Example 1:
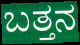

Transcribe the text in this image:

ಬತ್ತನ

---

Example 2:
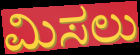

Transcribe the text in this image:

ಮಿಸಲು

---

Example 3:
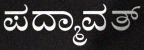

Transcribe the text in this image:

ಪದ್ಮಾವತ್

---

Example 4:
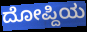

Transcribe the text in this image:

ದೋಪ್ದಿಯ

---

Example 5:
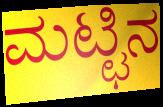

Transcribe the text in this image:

ಮಟ್ಟಿನ